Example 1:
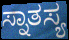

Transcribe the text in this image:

ಸ್ನಾತಸ್ಯ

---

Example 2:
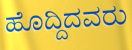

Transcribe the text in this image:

ಹೊದ್ದಿದವರು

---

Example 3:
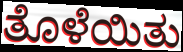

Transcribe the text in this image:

ತೊಳೆಯಿತು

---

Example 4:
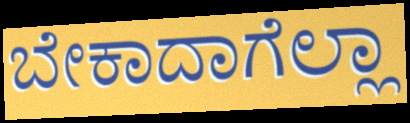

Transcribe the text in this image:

ಬೇಕಾದಾಗೆಲ್ಲಾ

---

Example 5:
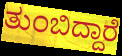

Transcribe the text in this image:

ತುಂಬಿದ್ದಾರೆ